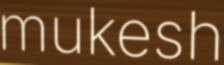
mukesh